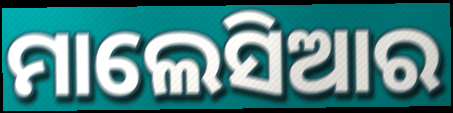
ମାଲେସିଆର